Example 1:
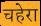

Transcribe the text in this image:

चहेरा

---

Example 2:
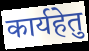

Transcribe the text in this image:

कार्यहेतु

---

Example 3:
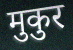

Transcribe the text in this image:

मुकुर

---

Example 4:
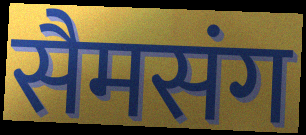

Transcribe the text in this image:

सैमसंग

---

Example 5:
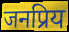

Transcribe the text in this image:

जनप्रिय